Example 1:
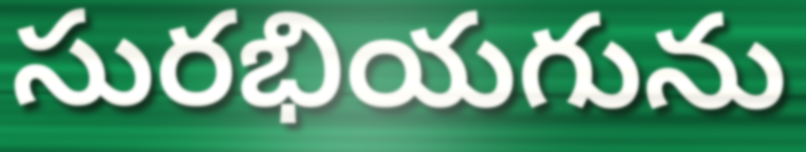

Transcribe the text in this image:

సురభియగును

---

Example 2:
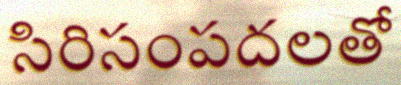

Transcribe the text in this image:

సిరిసంపదలతో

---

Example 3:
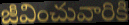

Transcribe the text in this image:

జీవించువారికి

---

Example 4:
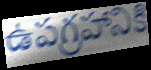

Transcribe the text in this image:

ఉపగ్రహానికి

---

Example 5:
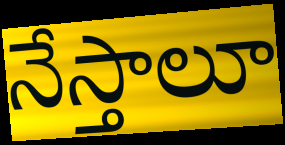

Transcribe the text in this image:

నేస్తాలూ